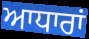
ਆਧਾਰਾਂ